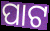
ପାଟ